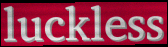
luckless